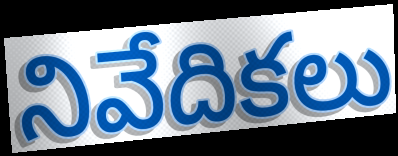
నివేదికలు